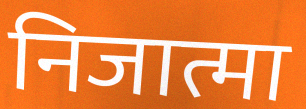
निजात्मा